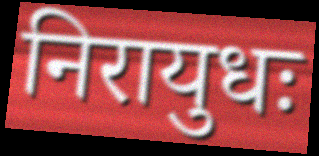
निरायुधः